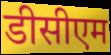
डीसीएम